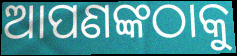
ଆପଣଙ୍କଠାକୁ